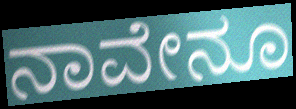
ನಾವೇನೂ